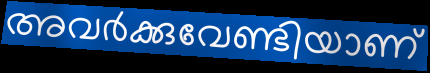
അവർക്കുവേണ്ടിയാണ്